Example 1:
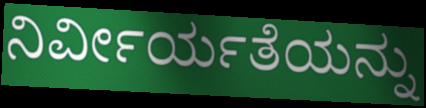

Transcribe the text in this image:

ನಿರ್ವೀರ್ಯತೆಯನ್ನು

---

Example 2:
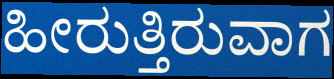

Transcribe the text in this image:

ಹೀರುತ್ತಿರುವಾಗ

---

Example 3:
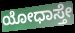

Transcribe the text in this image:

ಯೋಧಾಸ್ತೇ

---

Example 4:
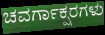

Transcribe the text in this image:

ಚವರ್ಗಾಕ್ಷರಗಳು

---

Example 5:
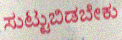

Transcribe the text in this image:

ಸುಟ್ಟುಬಿಡಬೇಕು